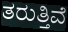
ತರುತ್ತಿವೆ